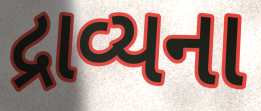
દ્રાવ્યના